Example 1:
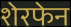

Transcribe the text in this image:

शेरफेन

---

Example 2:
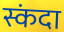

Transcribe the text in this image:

स्कंदा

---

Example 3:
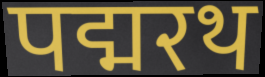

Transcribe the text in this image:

पद्मरथ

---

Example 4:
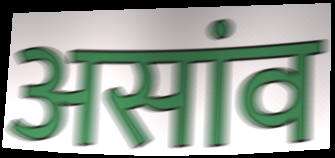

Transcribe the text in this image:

असांव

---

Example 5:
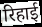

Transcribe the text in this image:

रिहाई